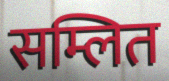
सम्लित